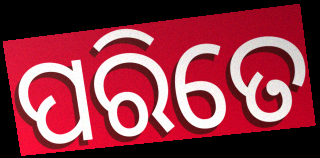
ପରିତେ